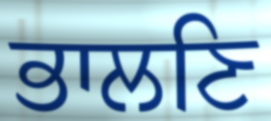
ਭਾਲਣਿ